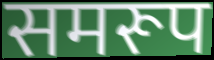
समरूप